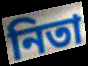
নিতা